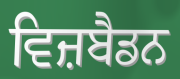
ਵਿਜ਼ਬੈਡਨ